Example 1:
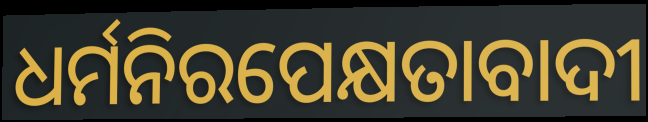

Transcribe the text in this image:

ଧର୍ମନିରପେକ୍ଷତାବାଦୀ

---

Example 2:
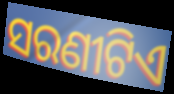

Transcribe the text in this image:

ସରଣୀଟିଏ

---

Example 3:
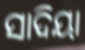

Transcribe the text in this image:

ସାଦିୟା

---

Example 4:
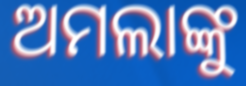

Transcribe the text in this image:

ଅମଲାଙ୍କୁ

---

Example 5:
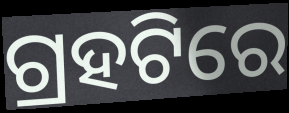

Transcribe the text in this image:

ଗ୍ରହଟିରେ